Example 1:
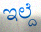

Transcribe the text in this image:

ಇಲ್ದೆ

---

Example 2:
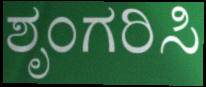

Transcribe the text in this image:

ಶೃಂಗರಿಸಿ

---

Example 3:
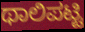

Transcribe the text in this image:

ಥಾಲಿಪಟ್ಟಿ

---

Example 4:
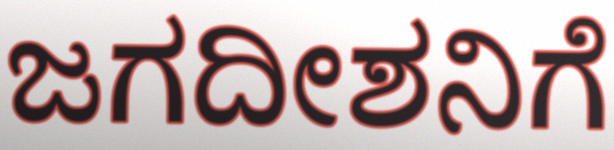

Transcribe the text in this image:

ಜಗದೀಶನಿಗೆ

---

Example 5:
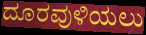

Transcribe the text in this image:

ದೂರವುಳಿಯಲು